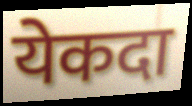
येकदा